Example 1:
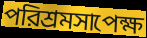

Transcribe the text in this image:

পরিশ্রমসাপেক্ষ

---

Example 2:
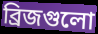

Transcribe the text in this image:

ব্রিজগুলো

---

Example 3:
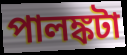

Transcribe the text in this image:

পালঙ্কটা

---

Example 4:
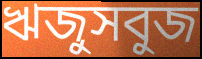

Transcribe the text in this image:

ঋজুসবুজ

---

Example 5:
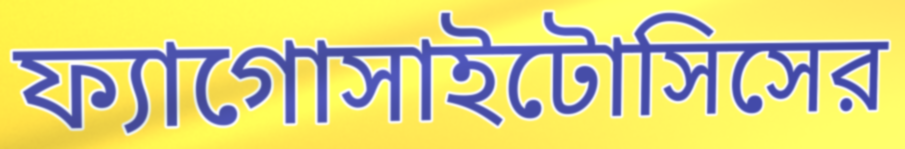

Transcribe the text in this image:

ফ্যাগোসাইটোসিসের